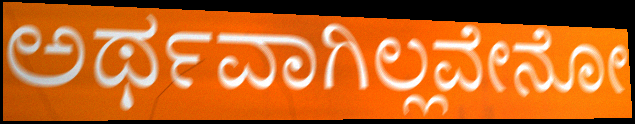
ಅರ್ಥವಾಗಿಲ್ಲವೇನೋ